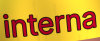
interna